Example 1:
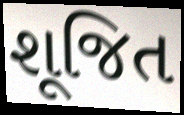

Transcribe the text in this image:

શૂજિત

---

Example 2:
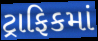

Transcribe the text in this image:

ટ્રાફિકમાં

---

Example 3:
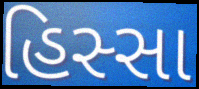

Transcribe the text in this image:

હિસ્સા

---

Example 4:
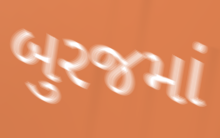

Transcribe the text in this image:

બુરજમાં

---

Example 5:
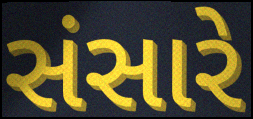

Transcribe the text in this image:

સંસારે